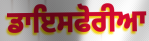
ਡਾਇਸਫੋਰੀਆ